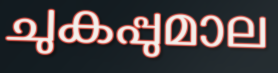
ചുകപ്പുമാല